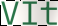
VIt